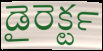
డైరెక్టర్‍